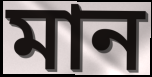
মান